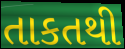
તાકતથી